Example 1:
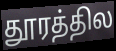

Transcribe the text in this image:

தூரத்தில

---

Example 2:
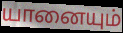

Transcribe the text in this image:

யானையும்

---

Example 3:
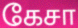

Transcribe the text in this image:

கேசா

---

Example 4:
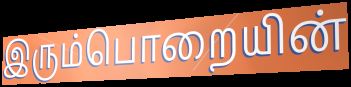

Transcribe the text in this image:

இரும்பொறையின்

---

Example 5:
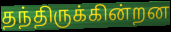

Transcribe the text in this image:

தந்திருக்கின்றன